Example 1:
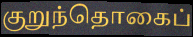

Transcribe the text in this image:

குறுந்தொகைப்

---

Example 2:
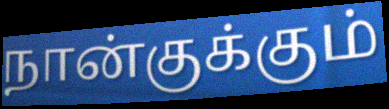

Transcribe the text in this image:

நான்குக்கும்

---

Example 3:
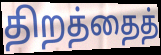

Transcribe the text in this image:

திறத்தைத்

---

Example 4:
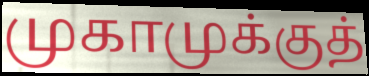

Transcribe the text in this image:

முகாமுக்குத்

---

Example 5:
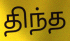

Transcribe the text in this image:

திந்த